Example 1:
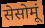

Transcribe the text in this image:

सेसोमूं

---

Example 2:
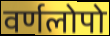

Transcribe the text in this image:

वर्णलोपो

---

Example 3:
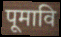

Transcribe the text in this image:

पूमावि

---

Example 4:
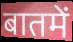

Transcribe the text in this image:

बातमें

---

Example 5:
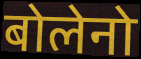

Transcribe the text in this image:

बोलेनो